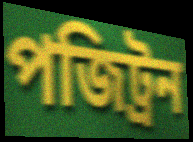
পজিট্রন